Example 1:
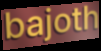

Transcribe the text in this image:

bajoth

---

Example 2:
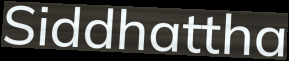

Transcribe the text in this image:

Siddhattha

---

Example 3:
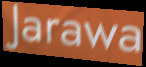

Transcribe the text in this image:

Jarawa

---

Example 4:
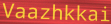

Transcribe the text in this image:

Vaazhkkai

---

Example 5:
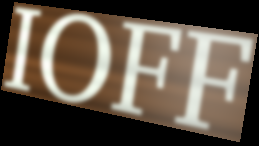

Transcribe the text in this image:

IOFF